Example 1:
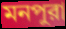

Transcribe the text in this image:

মনপুরা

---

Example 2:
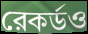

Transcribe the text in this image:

রেকর্ডও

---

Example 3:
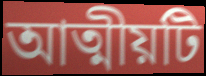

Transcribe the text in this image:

আত্মীয়টি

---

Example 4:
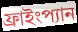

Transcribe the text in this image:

ফ্রাইংপ্যান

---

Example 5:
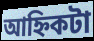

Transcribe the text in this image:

আহ্নিকটা